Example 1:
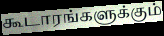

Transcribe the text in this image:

கூடாரங்களுக்கும்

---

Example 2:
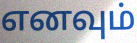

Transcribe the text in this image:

எனவும்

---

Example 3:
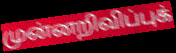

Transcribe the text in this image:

முன்னறிவிப்புக்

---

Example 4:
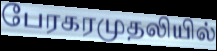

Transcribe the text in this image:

பேரகரமுதலியில்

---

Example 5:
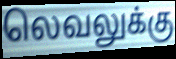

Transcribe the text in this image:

லெவலுக்கு